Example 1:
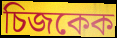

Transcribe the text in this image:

চিজকেক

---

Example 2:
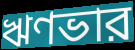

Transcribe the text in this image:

ঋণভার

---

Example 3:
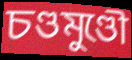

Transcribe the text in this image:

চণ্ডমুণ্ডৌ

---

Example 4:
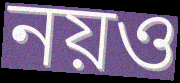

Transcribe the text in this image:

নয়ও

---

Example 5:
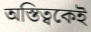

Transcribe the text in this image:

অস্তিত্বকেই